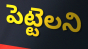
పెట్టెలని